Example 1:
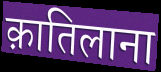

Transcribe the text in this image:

क़ातिलाना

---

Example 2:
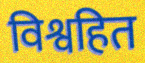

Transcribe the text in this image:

विश्वहित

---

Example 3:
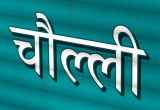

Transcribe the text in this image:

चौल्ली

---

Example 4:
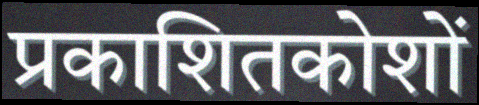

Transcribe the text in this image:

प्रकाशितकोशों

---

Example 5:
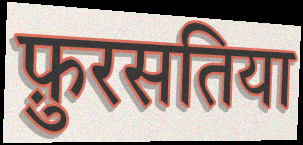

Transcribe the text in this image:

फ़ुरसतिया